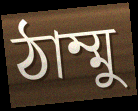
ঠাম্মু